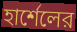
হার্শেলের